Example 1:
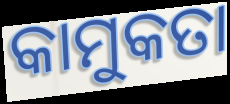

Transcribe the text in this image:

କାମୁକତା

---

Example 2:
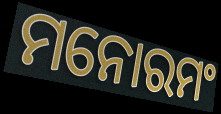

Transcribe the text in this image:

ମନୋରମଂ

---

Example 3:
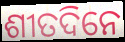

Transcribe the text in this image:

ଶୀତଦିନେ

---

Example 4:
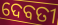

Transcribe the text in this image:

ଦେବତୀ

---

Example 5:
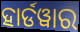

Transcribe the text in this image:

ହାର୍ଡୱାର